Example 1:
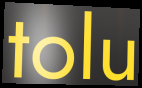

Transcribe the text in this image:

tolu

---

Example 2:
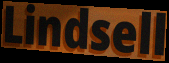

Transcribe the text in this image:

Lindsell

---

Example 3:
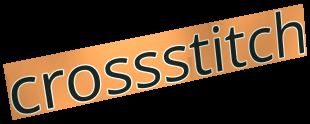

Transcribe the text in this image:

crossstitch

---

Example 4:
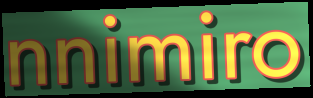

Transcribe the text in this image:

nnimiro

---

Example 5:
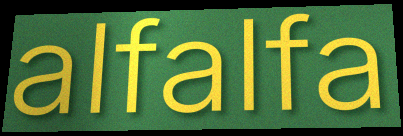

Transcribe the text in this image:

alfalfa